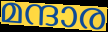
മന്ദാര